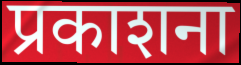
प्रकाशना